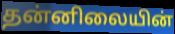
தன்னிலையின்